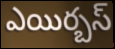
ఎయిర్బస్